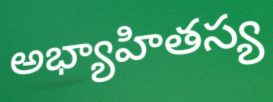
అభ్యాహితస్య